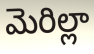
మెరిల్లా